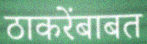
ठाकरेंबाबत